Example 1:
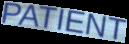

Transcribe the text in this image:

PATIENT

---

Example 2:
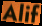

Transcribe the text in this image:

Alif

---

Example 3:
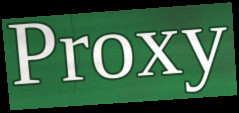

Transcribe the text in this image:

Proxy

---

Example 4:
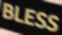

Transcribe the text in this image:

BLESS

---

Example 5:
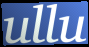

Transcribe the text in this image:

ullu